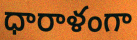
ధారాళంగా